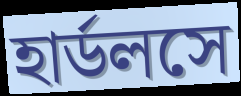
হার্ডলসে